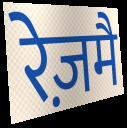
रेज़मै